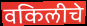
वकिलीचे